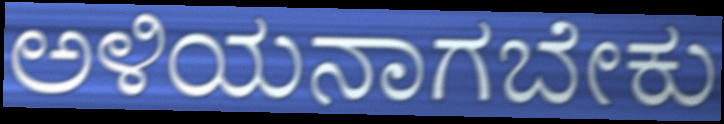
ಅಳಿಯನಾಗಬೇಕು